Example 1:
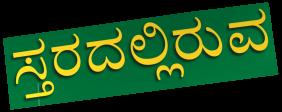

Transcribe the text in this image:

ಸ್ತರದಲ್ಲಿರುವ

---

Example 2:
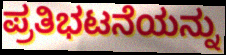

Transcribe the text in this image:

ಪ್ರತಿಭಟನೆಯನ್ನು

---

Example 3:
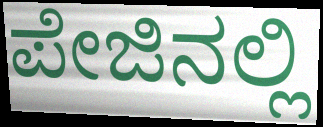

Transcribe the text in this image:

ಪೇಜಿನಲ್ಲಿ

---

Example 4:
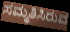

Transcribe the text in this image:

ಸಮ್ಮತಿಸಿರುವ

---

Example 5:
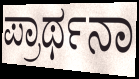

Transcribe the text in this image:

ಪ್ರಾರ್ಥನಾ